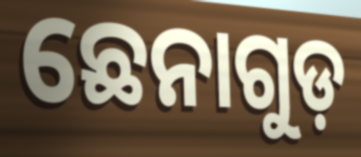
ଛେନାଗୁଡ଼